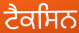
ਟੈਕਸਿਨ